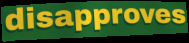
disapproves